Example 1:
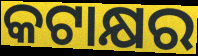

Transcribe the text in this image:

କଟାକ୍ଷର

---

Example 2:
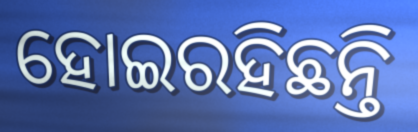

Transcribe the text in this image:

ହୋଇରହିଛନ୍ତି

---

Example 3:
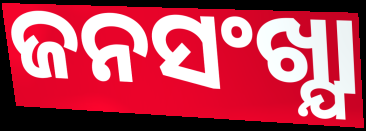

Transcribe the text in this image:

ଜନସଂଖ୍ଯା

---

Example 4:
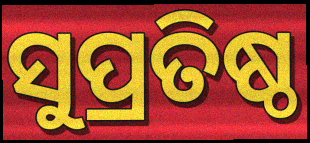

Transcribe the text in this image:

ସୁପ୍ରତିଷ୍ଠ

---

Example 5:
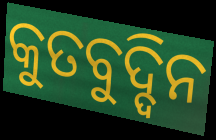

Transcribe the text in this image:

କୁତବୁଦ୍ଦିନ